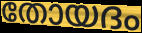
തോയദം